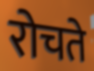
रोचते